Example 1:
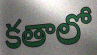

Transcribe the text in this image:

కతాలో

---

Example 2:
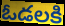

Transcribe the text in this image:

ఓడలకి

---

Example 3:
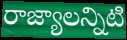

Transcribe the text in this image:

రాజ్యాలన్నిటి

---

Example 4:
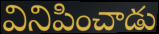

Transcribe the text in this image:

వినిపించాడు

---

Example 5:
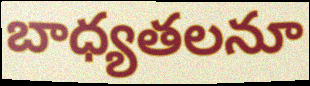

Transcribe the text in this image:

బాధ్యతలనూ